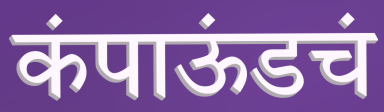
कंपाऊंडचं